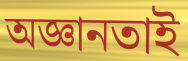
অজ্ঞানতাই